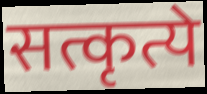
सत्कृत्ये